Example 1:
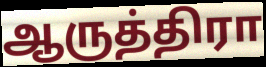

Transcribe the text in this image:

ஆருத்திரா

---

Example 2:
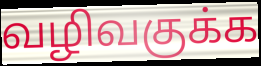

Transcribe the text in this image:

வழிவகுக்க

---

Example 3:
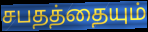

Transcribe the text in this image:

சபதத்தையும்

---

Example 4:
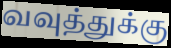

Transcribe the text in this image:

வவுத்துக்கு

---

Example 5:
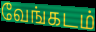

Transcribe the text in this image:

வேங்கடம்